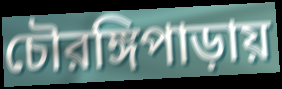
চৌরঙ্গিপাড়ায়